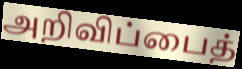
அறிவிப்பைத்